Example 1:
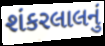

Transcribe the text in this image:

શંકરલાલનું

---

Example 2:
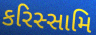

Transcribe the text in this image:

કરિસ્સામિ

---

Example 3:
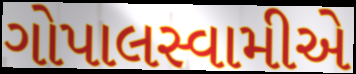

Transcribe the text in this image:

ગોપાલસ્વામીએ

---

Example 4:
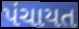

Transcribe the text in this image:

પંચાયત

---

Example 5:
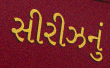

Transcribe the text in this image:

સીરીઝનું